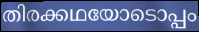
തിരക്കഥയോടൊപ്പം